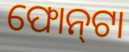
ଫୋନ୍‍ଟା